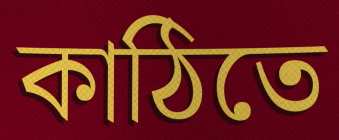
কাঠিতে